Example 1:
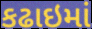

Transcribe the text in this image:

કઢાઇમાં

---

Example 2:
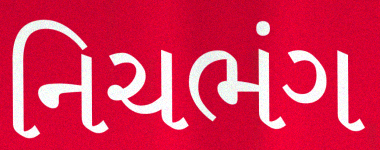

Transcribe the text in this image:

નિચભંગ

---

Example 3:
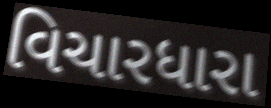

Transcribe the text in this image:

વિચારધારા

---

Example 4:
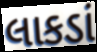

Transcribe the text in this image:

લાકડાં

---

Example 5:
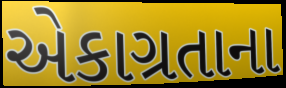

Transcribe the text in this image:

એકાગ્રતાના